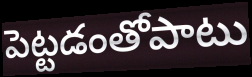
పెట్టడంతోపాటు